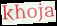
khoja